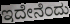
ಇದೇನೆಂದು